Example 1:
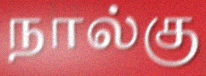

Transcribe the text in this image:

நால்கு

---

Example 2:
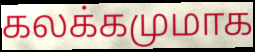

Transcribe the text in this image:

கலக்கமுமாக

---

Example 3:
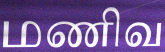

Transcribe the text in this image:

மணிவ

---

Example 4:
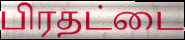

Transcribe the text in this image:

பிரதட்டை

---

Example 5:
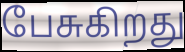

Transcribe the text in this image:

பேசுகிறது